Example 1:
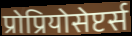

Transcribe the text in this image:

प्रोप्रियोसेप्टर्स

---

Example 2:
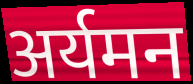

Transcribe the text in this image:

अर्यमन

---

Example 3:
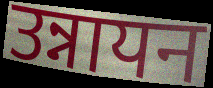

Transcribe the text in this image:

उन्नायन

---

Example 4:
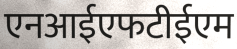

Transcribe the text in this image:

एनआईएफटीईएम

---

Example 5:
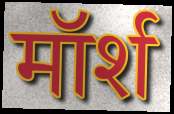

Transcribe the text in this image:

मॉर्श